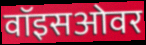
वॉइसओवर